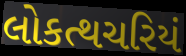
લોકત્થચરિયં